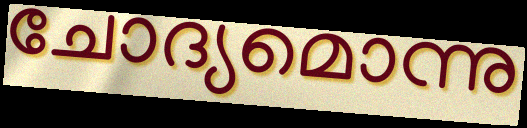
ചോദ്യമൊന്നു